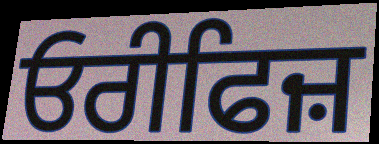
ਓਰੀਫਿਜ਼